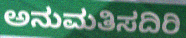
ಅನುಮತಿಸದಿರಿ